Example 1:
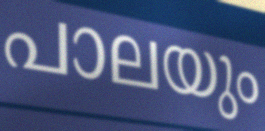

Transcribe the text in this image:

പാലയും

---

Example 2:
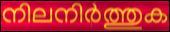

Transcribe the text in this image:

നിലനിർത്തുക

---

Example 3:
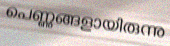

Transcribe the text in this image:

പെണ്ണുങ്ങളായിരുന്നു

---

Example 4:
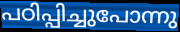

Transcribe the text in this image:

പഠിപ്പിച്ചുപോന്നു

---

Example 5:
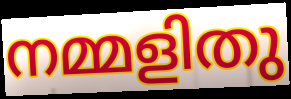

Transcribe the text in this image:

നമ്മളിതു